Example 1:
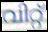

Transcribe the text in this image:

വിറ്റ്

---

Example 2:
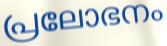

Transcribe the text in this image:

പ്രലോഭനം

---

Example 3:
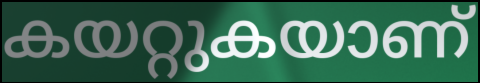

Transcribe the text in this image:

കയറ്റുകയാണ്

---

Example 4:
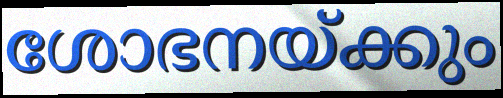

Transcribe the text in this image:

ശോഭനയ്ക്കും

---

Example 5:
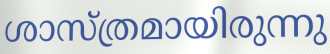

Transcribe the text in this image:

ശാസ്ത്രമായിരുന്നു